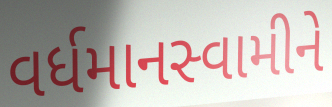
વર્ધમાનસ્વામીને